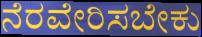
ನೆರವೇರಿಸಬೇಕು